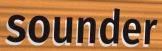
sounder